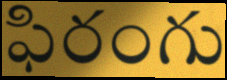
ఫిరంగు